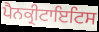
ਪੈਨਕ੍ਰੀਟਾਇਟਿਸ